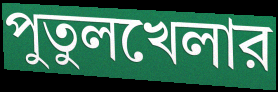
পুতুলখেলার